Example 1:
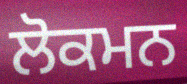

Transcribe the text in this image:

ਲੋਕਮਨ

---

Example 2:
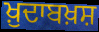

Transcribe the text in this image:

ਖ਼ੁਦਾਬਖ਼ਸ਼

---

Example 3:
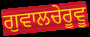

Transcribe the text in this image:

ਗੁਵਾਲਚੇਰੂਵੂ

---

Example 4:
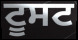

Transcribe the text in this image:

ਟੂਸਟ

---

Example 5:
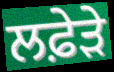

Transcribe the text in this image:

ਲਫ਼ੇੜੇ